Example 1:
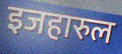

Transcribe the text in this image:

इजहारुल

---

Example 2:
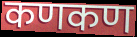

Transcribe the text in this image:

कणकण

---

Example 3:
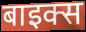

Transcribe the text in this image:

बाइक्स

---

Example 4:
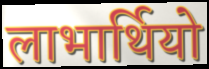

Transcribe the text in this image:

लाभार्थियो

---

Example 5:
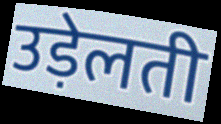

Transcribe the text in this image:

उड़ेलती